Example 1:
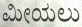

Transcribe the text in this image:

ಮೀಯಲು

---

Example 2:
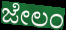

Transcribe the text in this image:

ಜೇಲಂ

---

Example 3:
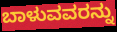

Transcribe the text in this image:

ಬಾಳುವವರನ್ನು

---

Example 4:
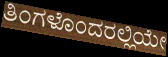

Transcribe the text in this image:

ತಿಂಗಳೊಂದರಲ್ಲಿಯೇ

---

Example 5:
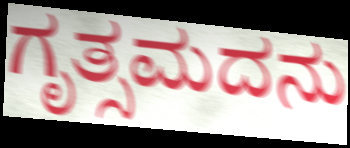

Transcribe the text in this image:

ಗೃತ್ಸಮದನು